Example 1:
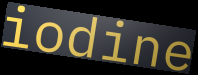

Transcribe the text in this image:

iodine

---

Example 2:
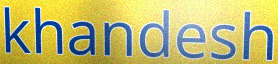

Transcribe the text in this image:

khandesh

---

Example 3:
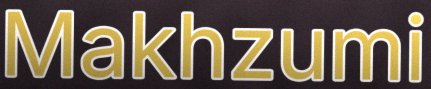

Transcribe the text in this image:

Makhzumi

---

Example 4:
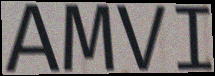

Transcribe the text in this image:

AMVI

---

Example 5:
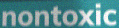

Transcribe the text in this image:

nontoxic